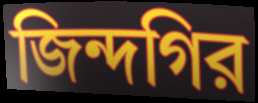
জিন্দগির